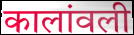
कालांवली